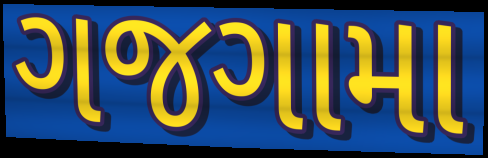
ગજગામા